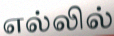
எல்லில்